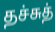
தச்சுத்